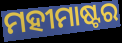
ମହୀମାଷ୍ଟର